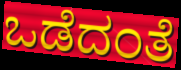
ಒಡೆದಂತೆ